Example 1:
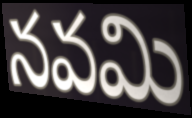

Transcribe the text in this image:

నవమి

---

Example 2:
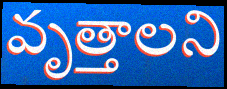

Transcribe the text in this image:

వృత్తాలని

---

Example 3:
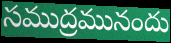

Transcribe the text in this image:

సముద్రమునందు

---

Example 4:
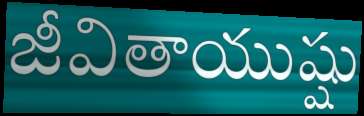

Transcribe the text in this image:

జీవితాయుష్షు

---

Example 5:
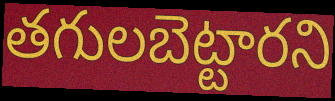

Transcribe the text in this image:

తగులబెట్టారని